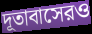
দূতাবাসেরও